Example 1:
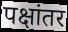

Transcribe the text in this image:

पक्षांतर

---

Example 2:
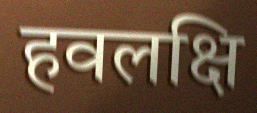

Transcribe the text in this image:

हवलक्षि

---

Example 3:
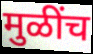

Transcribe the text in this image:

मुळींच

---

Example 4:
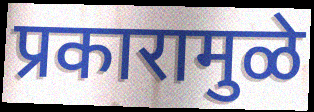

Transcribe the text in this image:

प्रकारामुळे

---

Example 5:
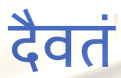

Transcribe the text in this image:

दैवतं